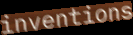
inventions